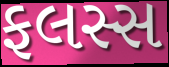
ફલસ્સ